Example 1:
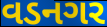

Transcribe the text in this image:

વડનગર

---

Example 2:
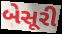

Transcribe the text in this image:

બેસૂરી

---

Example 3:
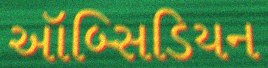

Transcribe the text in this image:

ઑબ્સિડિયન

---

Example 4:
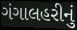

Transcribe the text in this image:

ગંગાલહરીનું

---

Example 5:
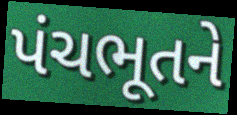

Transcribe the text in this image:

પંચભૂતને